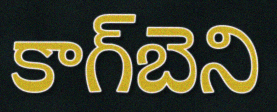
కాగ్‌బెని